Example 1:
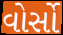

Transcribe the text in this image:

વોર્સો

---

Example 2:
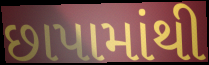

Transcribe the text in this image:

છાપામાંથી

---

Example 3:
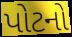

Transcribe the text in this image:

પોટનો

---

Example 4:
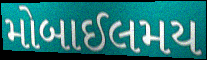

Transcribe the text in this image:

મોબાઈલમય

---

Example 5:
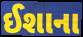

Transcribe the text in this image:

ઈશાના